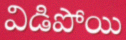
విడిపోయి